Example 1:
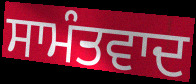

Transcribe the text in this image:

ਸਾਮੰਤਵਾਦ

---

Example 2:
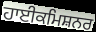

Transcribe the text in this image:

ਹਾਈਕਮਿਸ਼ਨਰ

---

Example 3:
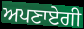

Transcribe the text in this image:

ਅਪਣਾਏਗੀ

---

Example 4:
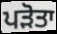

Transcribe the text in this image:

ਪੜੋਤਾ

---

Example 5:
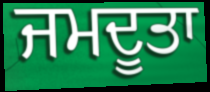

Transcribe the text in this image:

ਜਮਦੂਤਾ